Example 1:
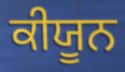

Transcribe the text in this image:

ਕੀਯੂਨ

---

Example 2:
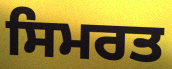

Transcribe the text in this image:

ਸਿਮਰਤ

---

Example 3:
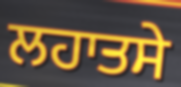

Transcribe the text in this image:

ਲਹਾਤਸੇ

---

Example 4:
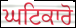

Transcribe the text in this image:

ਘਟਿਕਾਰੋ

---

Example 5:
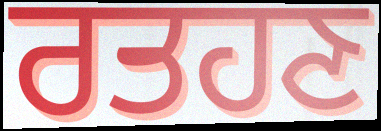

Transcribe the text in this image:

ਰਤਹਣ